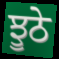
ਝੂਠੇ